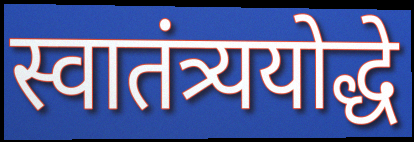
स्वातंत्र्ययोद्धे